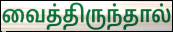
வைத்திருந்தால்